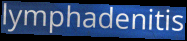
lymphadenitis